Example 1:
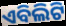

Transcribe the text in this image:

ଏବିଲିଟି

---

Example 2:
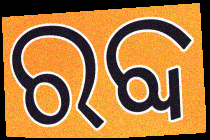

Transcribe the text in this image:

ରବ୍ଦ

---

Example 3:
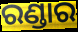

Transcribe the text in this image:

ରଣ୍ଡାର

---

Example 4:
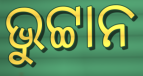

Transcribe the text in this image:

ଭୁଟ୍ଟାନ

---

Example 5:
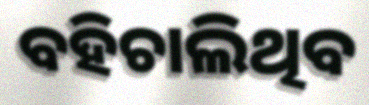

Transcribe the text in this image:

ବହିଚାଲିଥିବ